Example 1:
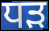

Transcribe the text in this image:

ਧੜ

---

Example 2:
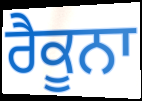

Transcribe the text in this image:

ਰੈਕੂਨਾ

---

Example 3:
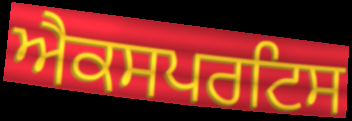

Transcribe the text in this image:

ਐਕਸਪਰਟਿਸ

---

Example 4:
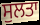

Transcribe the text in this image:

ਸੁਲਤਾ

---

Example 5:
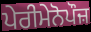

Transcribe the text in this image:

ਪੇਰੀਮੇਨੋਪੌਜ਼